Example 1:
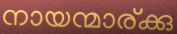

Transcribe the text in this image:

നായന്മാര്ക്കു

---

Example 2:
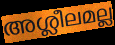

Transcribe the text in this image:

അശ്ലീലമല്ല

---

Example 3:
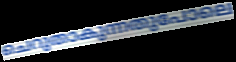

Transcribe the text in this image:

ചെറുതാകുന്നതുപോലെ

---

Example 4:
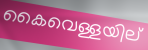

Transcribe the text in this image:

കൈവെള്ളയില്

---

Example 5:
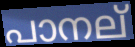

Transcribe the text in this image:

പാനല്